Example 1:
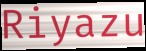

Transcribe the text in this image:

Riyazu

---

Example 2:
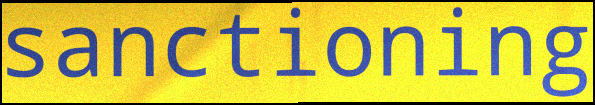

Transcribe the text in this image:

sanctioning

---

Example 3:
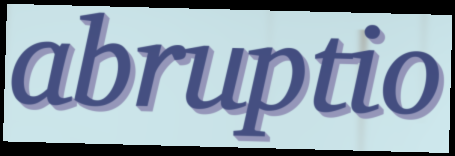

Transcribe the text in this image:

abruptio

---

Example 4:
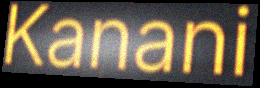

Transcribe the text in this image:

Kanani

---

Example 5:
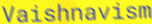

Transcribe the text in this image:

Vaishnavism